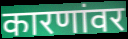
कारणांवर